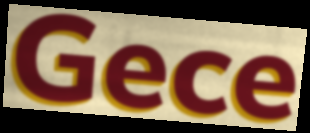
Gece